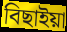
বিছাইয়া